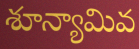
శూన్యామివ